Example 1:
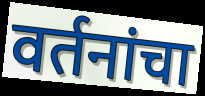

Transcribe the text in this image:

वर्तनांचा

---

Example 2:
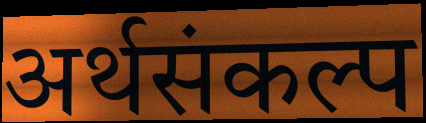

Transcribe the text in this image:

अर्थसंकल्प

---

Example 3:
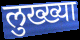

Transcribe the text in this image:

लुख्ख्या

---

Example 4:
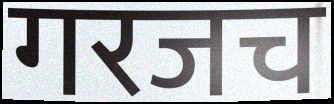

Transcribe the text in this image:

गरजच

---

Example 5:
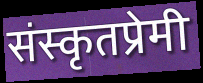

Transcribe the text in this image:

संस्कृतप्रेमी